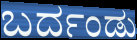
ಬರ್ದಂಡು